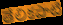
తేలికపాటి